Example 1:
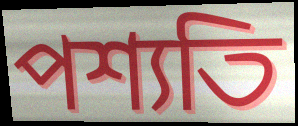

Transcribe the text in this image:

পশ্যতি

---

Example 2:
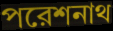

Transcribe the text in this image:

পরেশনাথ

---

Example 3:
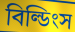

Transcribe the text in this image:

বিল্ডিংস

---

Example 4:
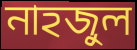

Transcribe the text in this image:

নাহজুল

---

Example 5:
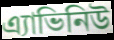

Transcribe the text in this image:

এ্যাভিনিউ